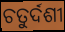
ଚତୁର୍ଦଶୀ